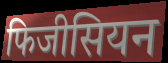
फिजीसियन